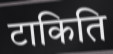
टाकिति